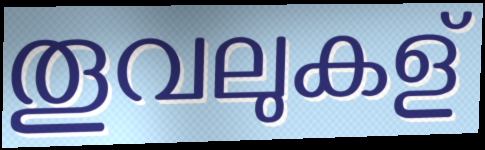
തൂവലുകള്